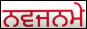
ਨਵਜਨਮੇ